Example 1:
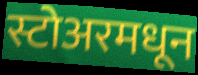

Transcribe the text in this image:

स्टोअरमधून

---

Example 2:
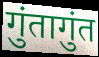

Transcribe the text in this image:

गुंतागुंत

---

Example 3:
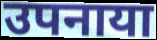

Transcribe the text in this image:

उपनाया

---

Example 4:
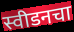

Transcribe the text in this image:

स्वीडनचा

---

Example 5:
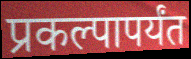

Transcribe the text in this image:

प्रकल्पापर्यंत